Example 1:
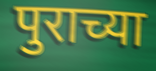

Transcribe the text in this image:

पुराच्या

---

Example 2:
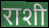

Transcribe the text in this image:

राशी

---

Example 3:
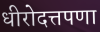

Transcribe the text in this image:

धीरोदत्तपणा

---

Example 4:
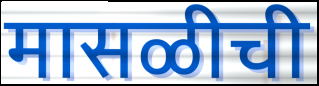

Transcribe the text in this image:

मासळीची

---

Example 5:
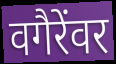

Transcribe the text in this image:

वगैरेंवर